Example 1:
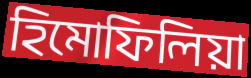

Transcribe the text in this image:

হিমোফিলিয়া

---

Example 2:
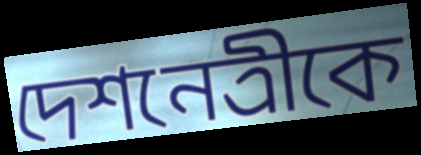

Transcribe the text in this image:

দেশনেত্রীকে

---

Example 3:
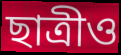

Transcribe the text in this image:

ছাত্রীও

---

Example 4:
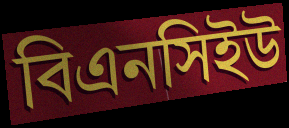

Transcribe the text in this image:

বিএনসিইউ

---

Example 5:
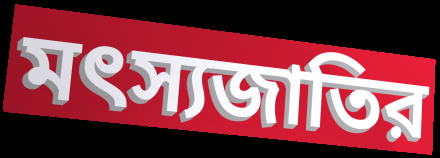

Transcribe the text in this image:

মৎস্যজাতির